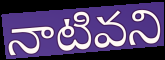
నాటివని